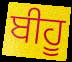
ਬੀਹੂ